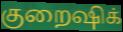
குறைஷிக்